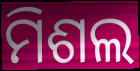
ମିଶଲ